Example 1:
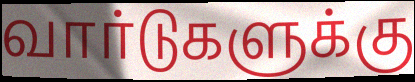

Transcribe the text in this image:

வார்டுகளுக்கு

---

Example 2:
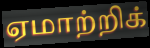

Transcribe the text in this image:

ஏமாற்றிக்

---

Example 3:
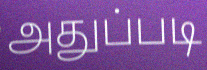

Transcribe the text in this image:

அதுப்படி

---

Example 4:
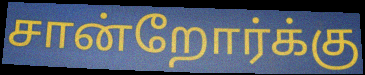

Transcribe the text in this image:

சான்றோர்க்கு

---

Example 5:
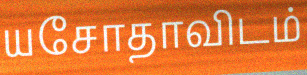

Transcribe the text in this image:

யசோதாவிடம்